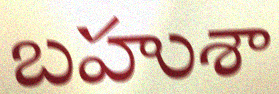
బహుశా